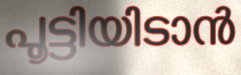
പൂട്ടിയിടാൻ